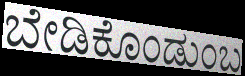
ಬೇಡಿಕೊಂಡುಂಬ